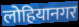
लोहियानगर